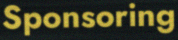
Sponsoring